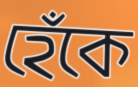
হেঁকে